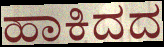
ಹಾಕಿದದ